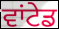
ਵਾਂਟੇਡ